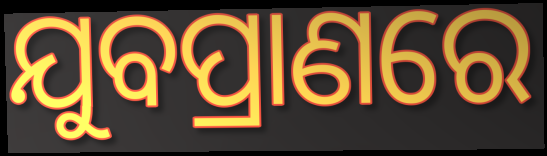
ଯୁବପ୍ରାଣରେ